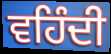
ਵਹਿੰਦੀ